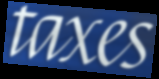
taxes